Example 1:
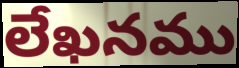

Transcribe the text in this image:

లేఖనము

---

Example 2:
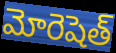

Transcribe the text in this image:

మోరెషెత్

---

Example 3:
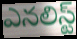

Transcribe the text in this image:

ఎనలిస్ట్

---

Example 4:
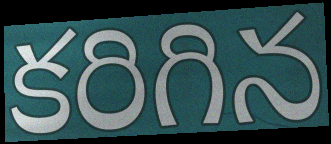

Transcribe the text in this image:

కరిగిన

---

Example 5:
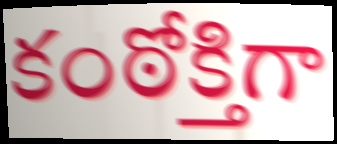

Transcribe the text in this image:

కంఠోక్తిగా